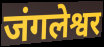
जंगलेश्वर